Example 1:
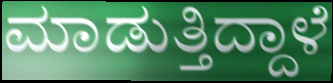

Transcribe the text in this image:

ಮಾಡುತ್ತಿದ್ದಾಳೆ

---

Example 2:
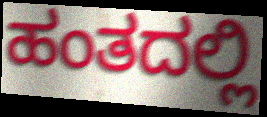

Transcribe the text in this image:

ಹಂತದಲ್ಲಿ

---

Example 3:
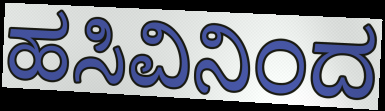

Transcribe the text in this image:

ಹಸಿವಿನಿಂದ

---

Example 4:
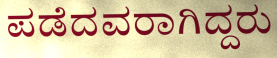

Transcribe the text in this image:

ಪಡೆದವರಾಗಿದ್ದರು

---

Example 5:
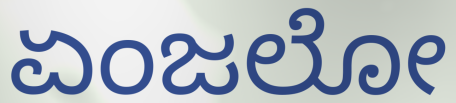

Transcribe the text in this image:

ಏಂಜಲೋ